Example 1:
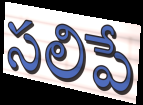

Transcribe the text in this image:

సలిపే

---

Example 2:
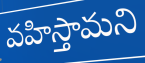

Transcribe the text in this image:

వహిస్తామని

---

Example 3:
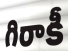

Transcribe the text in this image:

గిరాకీ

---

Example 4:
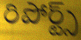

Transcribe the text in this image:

రిపోర్ట్స్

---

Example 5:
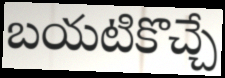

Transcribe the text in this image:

బయటికొచ్చే